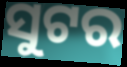
ସୁଟର